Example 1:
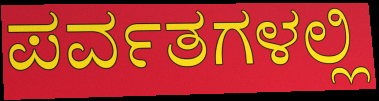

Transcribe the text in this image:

ಪರ್ವತಗಳಲ್ಲಿ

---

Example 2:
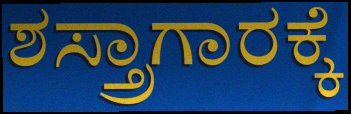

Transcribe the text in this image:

ಶಸ್ತ್ರಾಗಾರಕ್ಕೆ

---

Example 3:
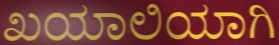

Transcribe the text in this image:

ಖಯಾಲಿಯಾಗಿ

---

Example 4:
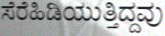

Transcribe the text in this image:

ಸೆರೆಹಿಡಿಯುತ್ತಿದ್ದವು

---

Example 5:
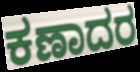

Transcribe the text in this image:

ಕಣಾದರ